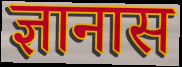
ज्ञानास